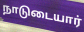
நாடுடையார்